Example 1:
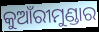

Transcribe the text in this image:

କୁଆଁରୀମୁଣ୍ଡାର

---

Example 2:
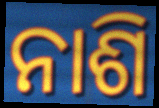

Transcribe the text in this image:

ନାଶି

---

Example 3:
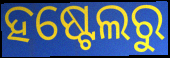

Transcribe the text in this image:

ହଷ୍ଟେଲରୁ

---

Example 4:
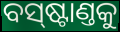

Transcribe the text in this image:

ବସ୍‌ଷ୍ଟାଣ୍ତକୁ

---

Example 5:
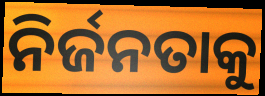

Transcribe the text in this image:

ନିର୍ଜନତାକୁ